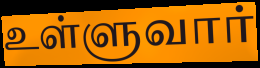
உள்ளுவார்